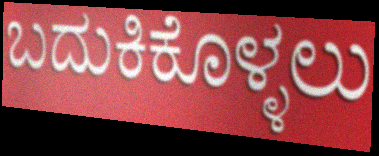
ಬದುಕಿಕೊಳ್ಳಲು